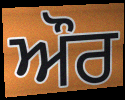
ਔਰ